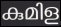
കുമിള